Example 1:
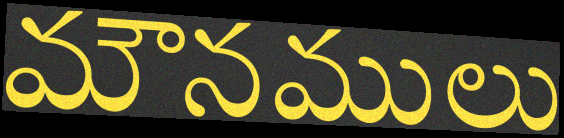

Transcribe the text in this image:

మౌనములు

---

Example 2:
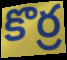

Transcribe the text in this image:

కొర్ర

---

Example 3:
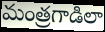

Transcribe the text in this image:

మంత్రగాడిలా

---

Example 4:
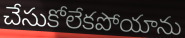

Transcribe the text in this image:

చేసుకోలేకపోయాను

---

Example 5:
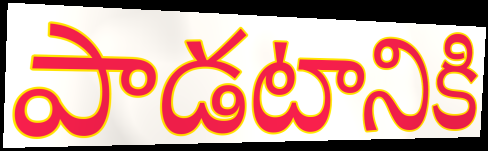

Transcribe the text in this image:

పాడటానికి